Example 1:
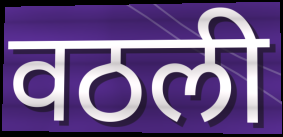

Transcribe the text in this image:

वठली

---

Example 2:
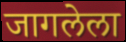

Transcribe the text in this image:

जागलेला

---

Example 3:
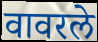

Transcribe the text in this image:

वावरले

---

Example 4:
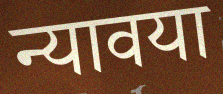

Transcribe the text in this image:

न्यावया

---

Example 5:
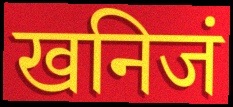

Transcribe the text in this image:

खनिजं